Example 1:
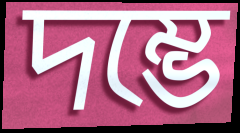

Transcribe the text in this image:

দম্ভে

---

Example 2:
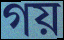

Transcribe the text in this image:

গয়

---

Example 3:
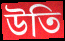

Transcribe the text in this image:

উতি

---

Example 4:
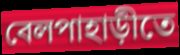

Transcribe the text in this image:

বেলপাহাড়ীতে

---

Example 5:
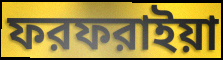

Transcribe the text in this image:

ফরফরাইয়া